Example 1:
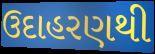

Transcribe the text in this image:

ઉદાહરણથી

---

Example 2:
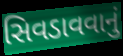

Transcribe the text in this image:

સિવડાવવાનું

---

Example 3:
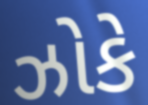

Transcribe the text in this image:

ઝોકે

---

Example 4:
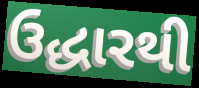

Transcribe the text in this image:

ઉદ્ધારથી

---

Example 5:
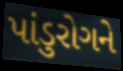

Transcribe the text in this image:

પાંડુરોગને